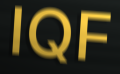
IQF